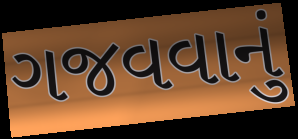
ગજવવાનું